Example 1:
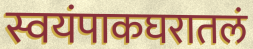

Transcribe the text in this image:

स्वयंपाकघरातलं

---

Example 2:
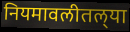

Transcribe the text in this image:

नियमावलीतल्या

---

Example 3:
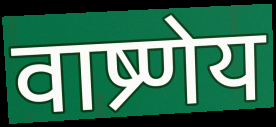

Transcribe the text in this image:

वाष्र्णेय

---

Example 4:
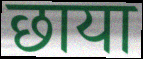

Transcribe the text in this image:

छाया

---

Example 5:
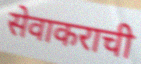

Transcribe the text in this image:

सेवाकराची